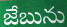
జేబును